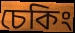
চেকিং